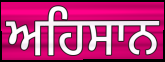
ਅਹਿਸਾਨ